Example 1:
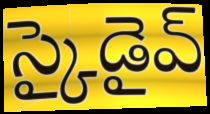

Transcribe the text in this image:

స్కైడైవ్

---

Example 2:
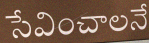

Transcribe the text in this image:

సేవించాలనే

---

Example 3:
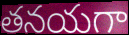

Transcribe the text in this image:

తనయగా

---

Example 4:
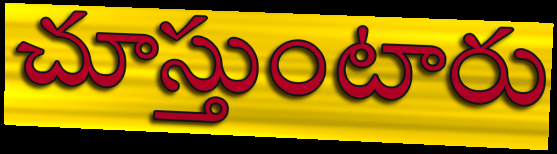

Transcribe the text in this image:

చూస్తుంటారు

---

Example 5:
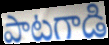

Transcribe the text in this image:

పాటగాడి